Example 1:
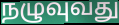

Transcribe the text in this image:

நழுவுவது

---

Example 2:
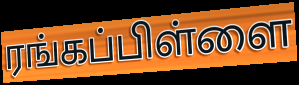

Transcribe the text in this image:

ரங்கப்பிள்ளை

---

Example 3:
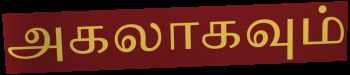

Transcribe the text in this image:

அகலாகவும்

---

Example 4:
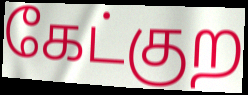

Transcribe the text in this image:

கேட்குற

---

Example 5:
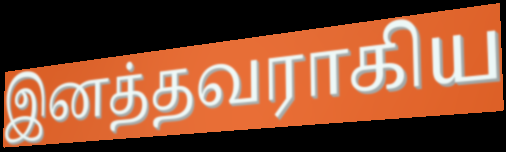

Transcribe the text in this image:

இனத்தவராகிய